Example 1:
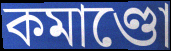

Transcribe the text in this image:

কমাণ্ডো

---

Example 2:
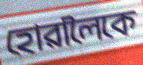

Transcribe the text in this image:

হোৱালৈকে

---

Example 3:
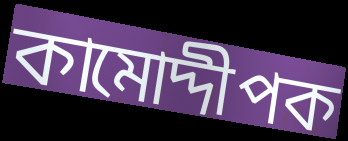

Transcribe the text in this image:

কামোদ্দীপক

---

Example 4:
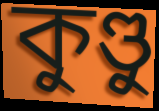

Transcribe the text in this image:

কুণ্ডু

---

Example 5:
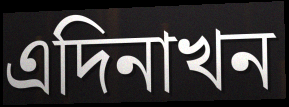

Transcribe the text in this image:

এদিনাখন